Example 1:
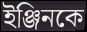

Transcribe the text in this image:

ইঞ্জিনকে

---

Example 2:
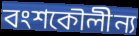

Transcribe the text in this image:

বংশকৌলীন্য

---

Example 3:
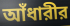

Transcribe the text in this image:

আঁধারীর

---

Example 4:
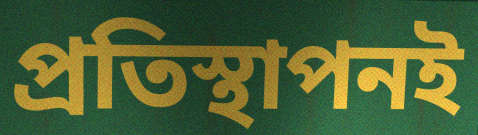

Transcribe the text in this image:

প্রতিস্থাপনই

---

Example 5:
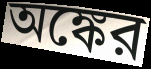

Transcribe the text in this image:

অঙ্কের